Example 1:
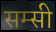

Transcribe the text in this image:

सम्सी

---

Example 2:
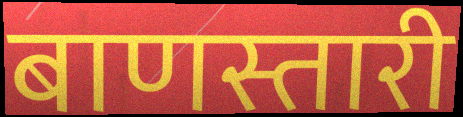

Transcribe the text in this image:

बाणस्तारी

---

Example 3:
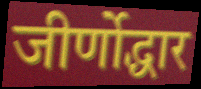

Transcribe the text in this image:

जीर्णोद्धार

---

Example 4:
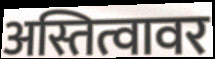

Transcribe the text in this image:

अस्तित्वावर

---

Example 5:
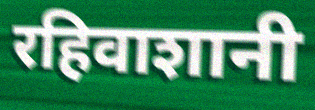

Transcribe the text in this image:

रहिवाशानी